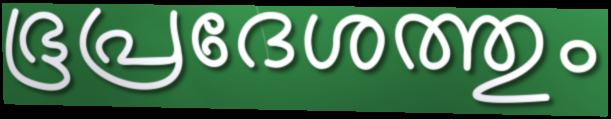
ഭൂപ്രദേശത്തും